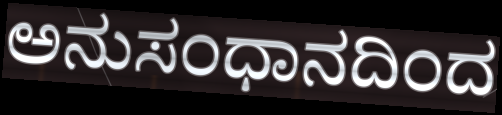
ಅನುಸಂಧಾನದಿಂದ